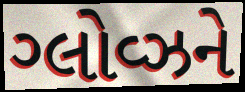
ગ્લોવ્ઝને